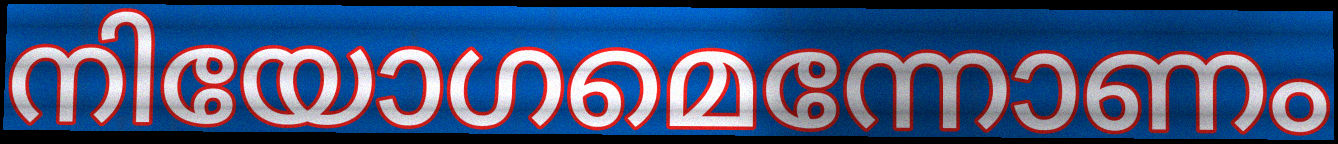
നിയോഗമെന്നോണം